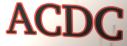
ACDC